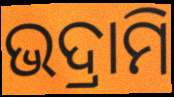
ଭଦ୍ରାମି